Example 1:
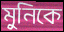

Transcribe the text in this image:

মুনিকে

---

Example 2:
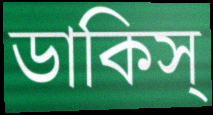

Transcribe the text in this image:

ডাকিস্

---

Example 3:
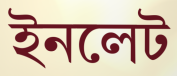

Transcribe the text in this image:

ইনলেট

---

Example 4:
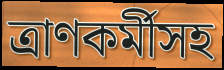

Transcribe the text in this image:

ত্রাণকর্মীসহ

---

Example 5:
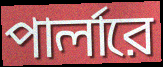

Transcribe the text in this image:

পার্লারে